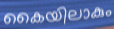
കൈയിലാകും